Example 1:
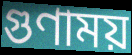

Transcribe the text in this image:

গুণাময়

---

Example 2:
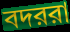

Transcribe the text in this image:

বদররা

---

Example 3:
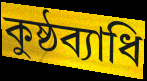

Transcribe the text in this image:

কুষ্ঠব্যাধি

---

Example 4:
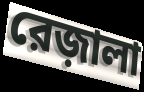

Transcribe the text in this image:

রেজ়ালা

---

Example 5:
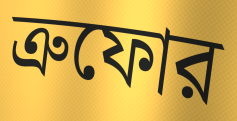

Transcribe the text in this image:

ত্রুফোর